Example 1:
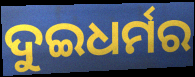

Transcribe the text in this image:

ଦୁଇଧର୍ମର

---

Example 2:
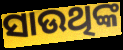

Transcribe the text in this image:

ସାଉଥିଙ୍କ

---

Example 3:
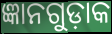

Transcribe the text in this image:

ଜ୍ଞାନଗୁଡ଼ାକ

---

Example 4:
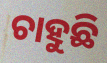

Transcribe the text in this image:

ଚାହୁଛି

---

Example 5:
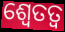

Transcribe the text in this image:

ଶ୍ୱେତତ୍ଵ